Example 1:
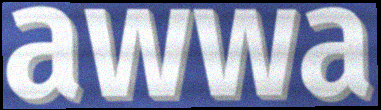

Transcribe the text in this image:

awwa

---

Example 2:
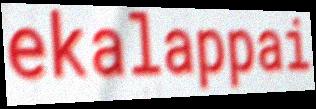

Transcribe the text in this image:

ekalappai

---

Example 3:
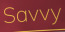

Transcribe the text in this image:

Savvy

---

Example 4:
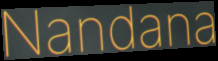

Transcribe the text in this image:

Nandana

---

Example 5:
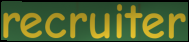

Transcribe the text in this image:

recruiter